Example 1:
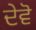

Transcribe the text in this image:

ਦੇਵੋ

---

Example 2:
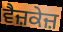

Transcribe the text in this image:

ਵੈਜ਼ਕੇਜ਼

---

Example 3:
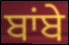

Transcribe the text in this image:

ਬਾਂਬੇ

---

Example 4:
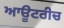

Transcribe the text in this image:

ਆਊਟਰੀਚ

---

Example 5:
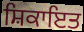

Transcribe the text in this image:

ਸ਼ਿਕਾਇਤ